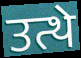
उत्थे